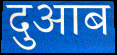
दुआब